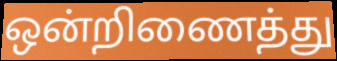
ஒன்றிணைத்து